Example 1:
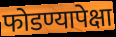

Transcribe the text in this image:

फोडण्यापेक्षा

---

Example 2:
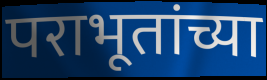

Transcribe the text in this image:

पराभूतांच्या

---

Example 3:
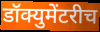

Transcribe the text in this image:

डॉक्युमेंटरीच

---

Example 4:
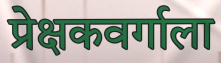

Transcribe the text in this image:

प्रेक्षकवर्गाला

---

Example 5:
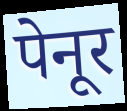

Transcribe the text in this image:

पेनूर